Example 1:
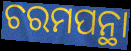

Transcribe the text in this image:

ଚରମପନ୍ଥା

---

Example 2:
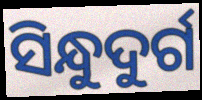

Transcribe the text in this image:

ସିନ୍ଧୁଦୁର୍ଗ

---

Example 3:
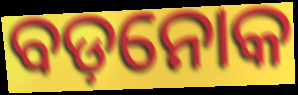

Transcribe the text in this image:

ବଡ଼ନୋକ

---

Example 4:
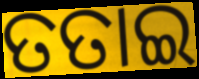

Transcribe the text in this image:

ତତାଇ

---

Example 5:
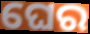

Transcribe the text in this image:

ଘେର